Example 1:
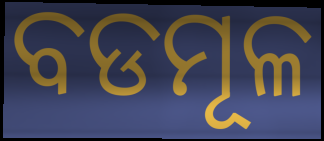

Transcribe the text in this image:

ବଡମୂଳ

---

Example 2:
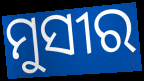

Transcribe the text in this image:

ମୁସୀର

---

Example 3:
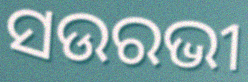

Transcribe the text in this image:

ସଉରଭୀ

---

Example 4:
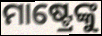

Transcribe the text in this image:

ମାଷ୍ଟ୍ରେଙ୍କୁ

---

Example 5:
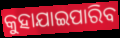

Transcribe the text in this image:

କୁହାଯାଇପାରିବ